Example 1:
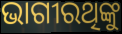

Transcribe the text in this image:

ଭାଗୀରଥିଙ୍କୁ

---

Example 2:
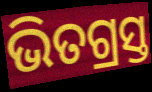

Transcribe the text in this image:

ଭିତଗ୍ରସ୍ତ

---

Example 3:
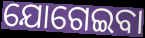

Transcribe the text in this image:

ଯୋଗେଇବା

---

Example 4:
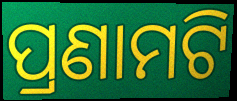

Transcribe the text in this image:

ପ୍ରଣାମଟି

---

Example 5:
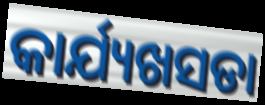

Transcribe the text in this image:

କାର୍ଯ୍ୟଖସଡା